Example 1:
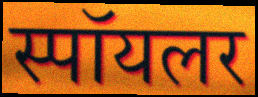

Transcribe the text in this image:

स्पॉयलर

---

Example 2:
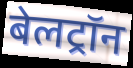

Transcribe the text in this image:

बेलट्रॉन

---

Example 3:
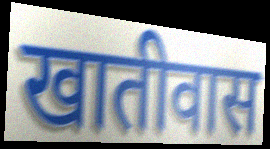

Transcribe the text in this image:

खातीवास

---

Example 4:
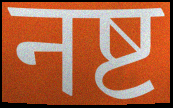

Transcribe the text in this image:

नष्ट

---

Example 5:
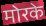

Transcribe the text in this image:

मोरके